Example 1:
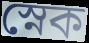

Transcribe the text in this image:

স্নেক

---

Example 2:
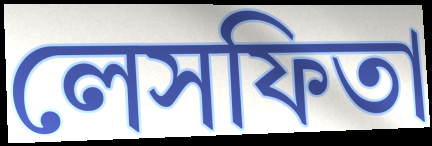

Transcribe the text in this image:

লেসফিতা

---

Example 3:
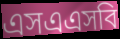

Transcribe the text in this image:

এসএএসবি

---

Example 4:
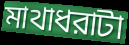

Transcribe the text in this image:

মাথাধরাটা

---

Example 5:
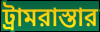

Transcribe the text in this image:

ট্রামরাস্তার